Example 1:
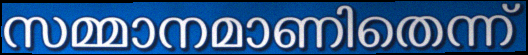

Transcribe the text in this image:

സമ്മാനമാണിതെന്ന്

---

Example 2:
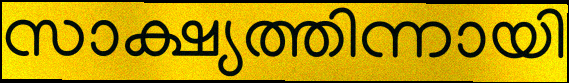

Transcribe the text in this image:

സാക്ഷ്യത്തിന്നായി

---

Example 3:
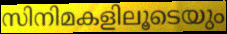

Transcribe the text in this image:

സിനിമകളിലൂടെയും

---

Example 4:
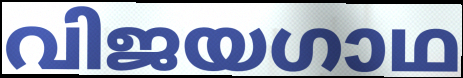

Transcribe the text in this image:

വിജയഗാഥ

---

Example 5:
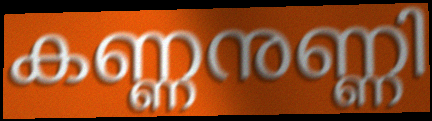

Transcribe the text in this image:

കണ്ണനുണ്ണി